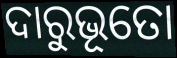
ଦାରୁଭୂତୋ